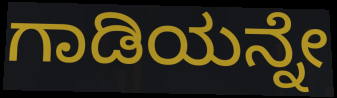
ಗಾಡಿಯನ್ನೇ